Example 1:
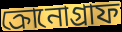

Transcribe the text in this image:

ক্রোনোগ্রাফ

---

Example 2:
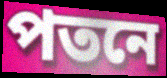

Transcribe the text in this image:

পতনে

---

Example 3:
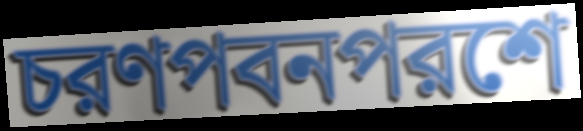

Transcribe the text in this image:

চরণপবনপরশে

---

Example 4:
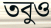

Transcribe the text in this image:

তবুও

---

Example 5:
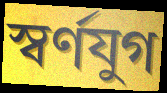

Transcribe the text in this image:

স্বর্ণযুগ